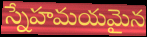
స్నేహమయమైన